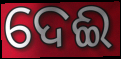
ଦେଈ